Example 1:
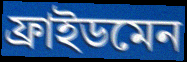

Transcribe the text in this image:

ফ্ৰাইডমেন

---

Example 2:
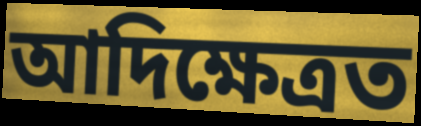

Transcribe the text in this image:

আদিক্ষেত্ৰত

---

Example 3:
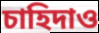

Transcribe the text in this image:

চাহিদাও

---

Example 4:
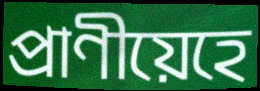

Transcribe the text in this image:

প্ৰাণীয়েহে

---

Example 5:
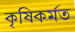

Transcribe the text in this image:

কৃষিকৰ্মত